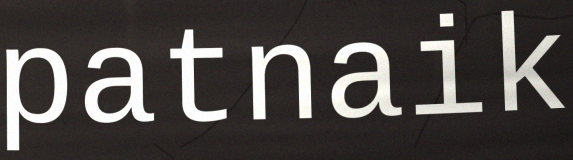
patnaik